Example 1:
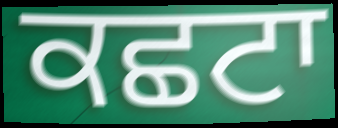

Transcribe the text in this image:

ਕਛਟਾ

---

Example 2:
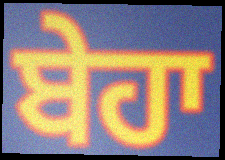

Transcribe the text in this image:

ਬੇਹਾ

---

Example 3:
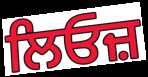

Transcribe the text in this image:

ਲਿਓਜ਼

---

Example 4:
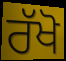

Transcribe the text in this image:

ਰੱਖੋ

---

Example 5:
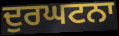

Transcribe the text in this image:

ਦੁਰਘਟਨਾ